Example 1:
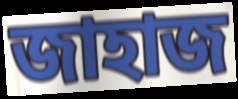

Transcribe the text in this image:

জাহাজ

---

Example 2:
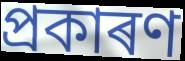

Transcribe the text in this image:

প্ৰকাৰণ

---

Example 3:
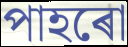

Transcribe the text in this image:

পাহৰো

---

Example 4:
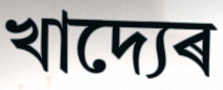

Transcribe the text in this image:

খাদ্যেৰ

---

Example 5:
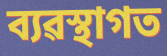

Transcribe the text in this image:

ব্যৱস্থাগত